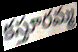
కస్తూరమ్మ